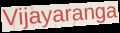
Vijayaranga